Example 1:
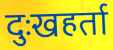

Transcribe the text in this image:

दुःखहर्ता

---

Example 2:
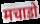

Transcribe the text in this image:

मचाडो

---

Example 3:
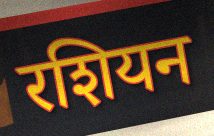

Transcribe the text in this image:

रशियन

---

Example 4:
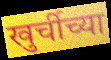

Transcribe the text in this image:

खुर्चीच्या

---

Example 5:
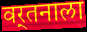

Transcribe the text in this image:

वर्तनाला